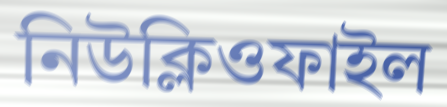
নিউক্লিওফাইল